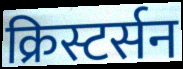
क्रिस्टर्सन